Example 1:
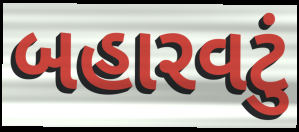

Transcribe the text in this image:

બહારવટું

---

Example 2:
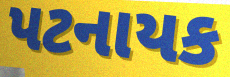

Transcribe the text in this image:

પટનાયક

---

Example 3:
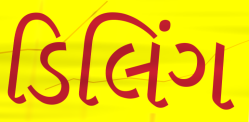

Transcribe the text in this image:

ડિલિંગ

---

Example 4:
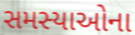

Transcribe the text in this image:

સમસ્યાઓના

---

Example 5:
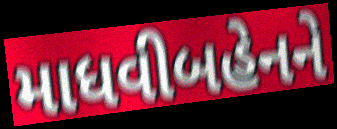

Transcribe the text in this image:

માધવીબહેનને